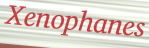
Xenophanes